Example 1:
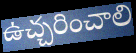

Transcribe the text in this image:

ఉచ్చరించాలి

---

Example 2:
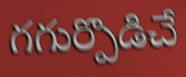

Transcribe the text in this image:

గగుర్పొడిచే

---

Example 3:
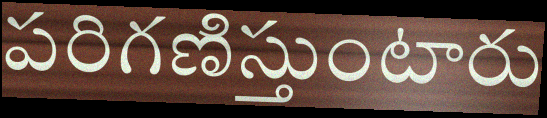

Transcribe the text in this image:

పరిగణిస్తుంటారు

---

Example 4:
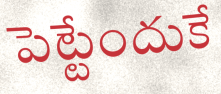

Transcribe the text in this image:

పెట్టేందుకే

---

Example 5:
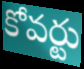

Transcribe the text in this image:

కోవర్టు